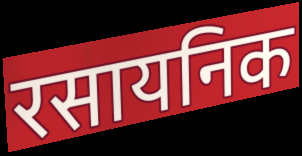
रसायनिक